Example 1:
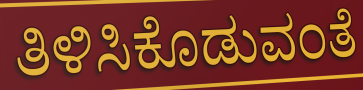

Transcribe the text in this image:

ತಿಳಿಸಿಕೊಡುವಂತೆ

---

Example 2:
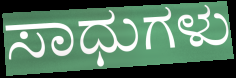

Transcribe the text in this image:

ಸಾಧುಗಳು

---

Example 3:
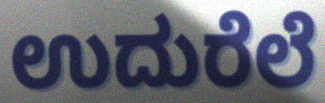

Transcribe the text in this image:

ಉದುರೆಲೆ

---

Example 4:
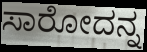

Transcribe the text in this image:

ಸಾರೋದನ್ನ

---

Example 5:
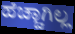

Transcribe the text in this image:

ಹೆಚ್ಚಾಗಿಲ್ಲ